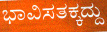
ಭಾವಿಸತಕ್ಕದ್ದು